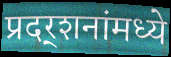
प्रदर्शनांमध्ये